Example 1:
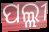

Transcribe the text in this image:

ପଲ୍ଲୀ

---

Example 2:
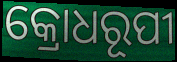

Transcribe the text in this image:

କ୍ରୋଧରୂପୀ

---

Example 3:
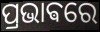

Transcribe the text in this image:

ପ୍ରଭାଵରେ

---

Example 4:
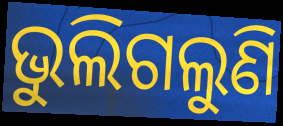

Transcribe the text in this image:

ଭୁଲିଗଲୁଣି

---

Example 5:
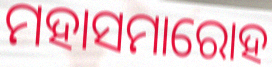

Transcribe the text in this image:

ମହାସମାରୋହ